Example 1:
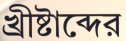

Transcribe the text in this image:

খ্রীষ্টাব্দের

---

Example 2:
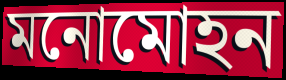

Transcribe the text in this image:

মনোমোহন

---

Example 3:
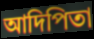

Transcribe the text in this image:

আদিপিতা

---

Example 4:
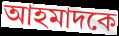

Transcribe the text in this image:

আহমাদকে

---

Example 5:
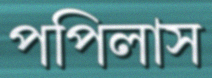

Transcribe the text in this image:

পপিলাস